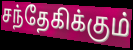
சந்தேகிக்கும்